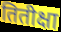
तितीक्षा